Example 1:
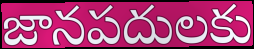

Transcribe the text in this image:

జానపదులకు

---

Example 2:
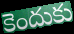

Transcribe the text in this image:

కెందుకు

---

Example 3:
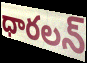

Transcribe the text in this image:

ధారలన్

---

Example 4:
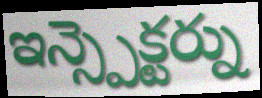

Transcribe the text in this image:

ఇన్స్పెక్టర్ను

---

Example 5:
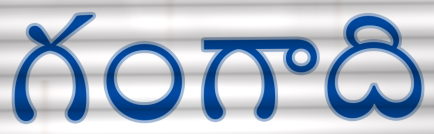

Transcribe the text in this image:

గంగాది